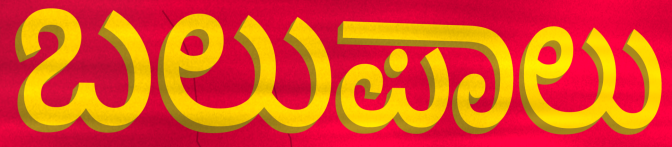
ಬಲುಪಾಲು